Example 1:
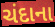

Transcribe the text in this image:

ચંદાના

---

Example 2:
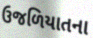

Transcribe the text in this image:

ઉજળિયાતના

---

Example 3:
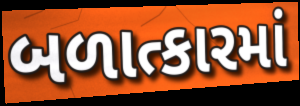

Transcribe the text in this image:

બળાત્કારમાં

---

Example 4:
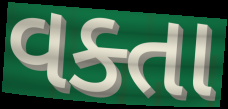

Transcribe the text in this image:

વક્તા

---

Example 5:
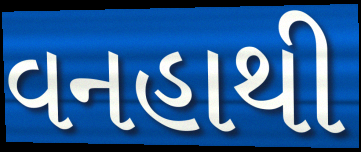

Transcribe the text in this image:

વનહાથી